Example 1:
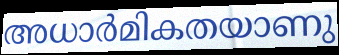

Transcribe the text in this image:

അധാർമികതയാണു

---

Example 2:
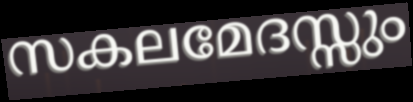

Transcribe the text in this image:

സകലമേദസ്സും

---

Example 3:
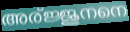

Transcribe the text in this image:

അര്ജ്ജുനനെ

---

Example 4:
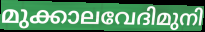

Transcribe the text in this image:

മുക്കാലവേദിമുനി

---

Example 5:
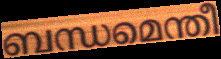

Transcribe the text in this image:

ബന്ധമെന്തീ